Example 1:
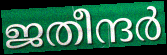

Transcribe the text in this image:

ജതീന്ദർ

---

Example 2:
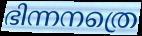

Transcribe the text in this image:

ഭിന്നനത്രെ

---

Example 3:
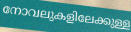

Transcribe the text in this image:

നോവലുകളിലേക്കുള്ള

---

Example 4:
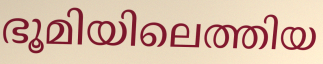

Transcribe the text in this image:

ഭൂമിയിലെത്തിയ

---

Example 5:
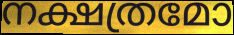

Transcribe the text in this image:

നക്ഷത്രമോ